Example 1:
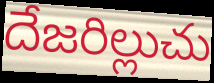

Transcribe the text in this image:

దేజరిల్లుచు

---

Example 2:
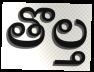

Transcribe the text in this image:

తొల్త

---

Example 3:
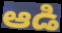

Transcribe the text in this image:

ఆడి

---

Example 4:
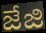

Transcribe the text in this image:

జేజి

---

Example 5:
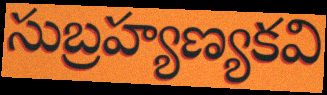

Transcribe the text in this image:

సుబ్రహ్యణ్యకవి